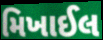
મિખાઈલ